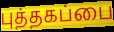
புத்தகப்பை